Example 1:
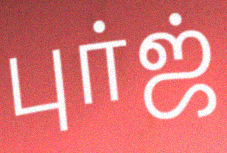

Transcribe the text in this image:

புர்ஜ்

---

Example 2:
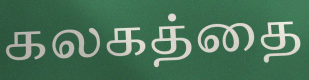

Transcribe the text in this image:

கலகத்தை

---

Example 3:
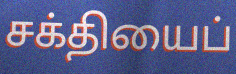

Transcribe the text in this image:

சக்தியைப்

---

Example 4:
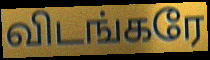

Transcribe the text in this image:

விடங்கரே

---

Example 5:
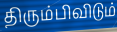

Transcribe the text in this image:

திரும்பிவிடும்